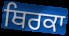
ਥਿਰਕਾ